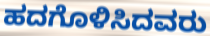
ಹದಗೊಳಿಸಿದವರು